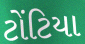
ટોંટિયા